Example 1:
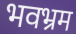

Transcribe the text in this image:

भवभ्रम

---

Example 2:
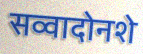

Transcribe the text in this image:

सव्वादोनशे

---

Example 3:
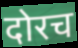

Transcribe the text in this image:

दोरच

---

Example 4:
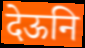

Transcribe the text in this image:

देऊनि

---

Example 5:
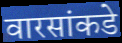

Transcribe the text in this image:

वारसांकडे